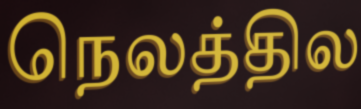
நெலத்தில